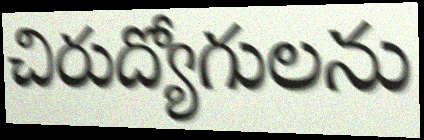
చిరుద్యోగులను